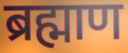
ब्रह्माण